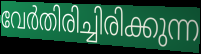
വേർതിരിച്ചിരിക്കുന്ന